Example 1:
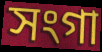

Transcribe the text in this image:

সংগা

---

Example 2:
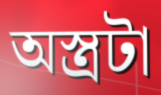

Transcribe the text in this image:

অস্ত্রটা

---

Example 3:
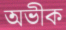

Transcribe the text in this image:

অভীক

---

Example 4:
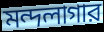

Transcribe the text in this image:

মন্দলাগার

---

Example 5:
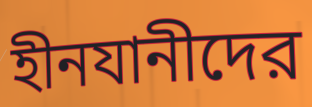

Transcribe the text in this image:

হীনযানীদের